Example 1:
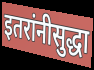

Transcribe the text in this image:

इतरांनीसुद्धा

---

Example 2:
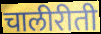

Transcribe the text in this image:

चालीरीती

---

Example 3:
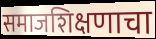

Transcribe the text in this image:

समाजशिक्षणाचा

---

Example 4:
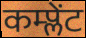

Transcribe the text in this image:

कम्प्लेंट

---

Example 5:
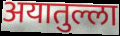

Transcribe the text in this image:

अयातुल्ला